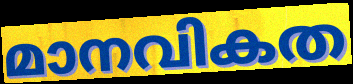
മാനവികത